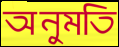
অনুমতি